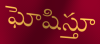
ఘోషిస్తూ